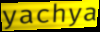
yachya